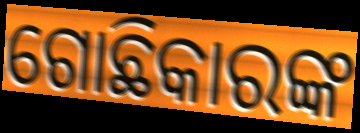
ଗୋଛିକାରଙ୍କ